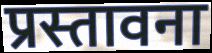
प्रस्तावना